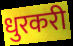
धुरकरी